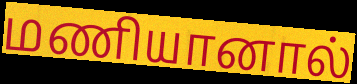
மணியானால்